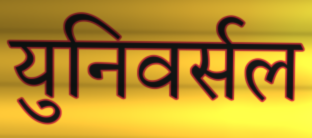
युनिवर्सल